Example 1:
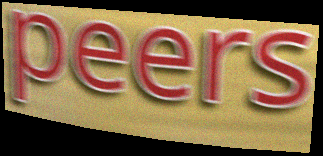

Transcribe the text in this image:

peers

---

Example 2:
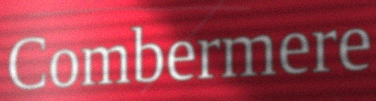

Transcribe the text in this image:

Combermere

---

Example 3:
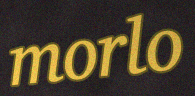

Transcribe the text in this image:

morlo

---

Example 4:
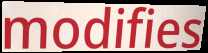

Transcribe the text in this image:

modifies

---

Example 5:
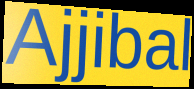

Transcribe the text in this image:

Ajjibal